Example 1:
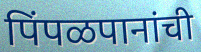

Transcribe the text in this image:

पिंपळपानांची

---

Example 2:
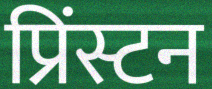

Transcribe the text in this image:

प्रिंस्टन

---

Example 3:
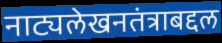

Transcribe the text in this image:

नाट्यलेखनतंत्राबद्दल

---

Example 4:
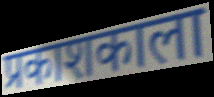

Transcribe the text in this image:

प्रकाशकाला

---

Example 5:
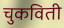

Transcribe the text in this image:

चुकविती